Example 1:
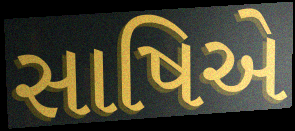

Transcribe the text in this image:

સાષિએ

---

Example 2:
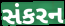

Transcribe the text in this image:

સંકરન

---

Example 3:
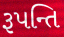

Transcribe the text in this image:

રૂપન્તિ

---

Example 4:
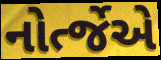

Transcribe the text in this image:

નોર્ત્જેએ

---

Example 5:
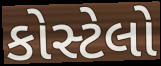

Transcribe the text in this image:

કોસ્ટેલો